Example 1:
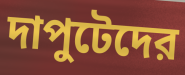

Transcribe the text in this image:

দাপুটেদের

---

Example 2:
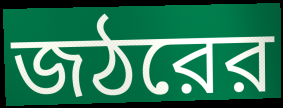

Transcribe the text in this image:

জঠরের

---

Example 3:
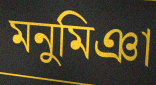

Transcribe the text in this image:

মনুমিঞা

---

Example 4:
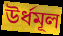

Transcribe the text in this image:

উর্ধমূল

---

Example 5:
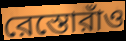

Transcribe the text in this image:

রেস্তোরাঁও